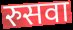
रुसवा